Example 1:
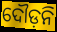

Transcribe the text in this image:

ଦୌଡ଼ନି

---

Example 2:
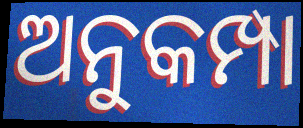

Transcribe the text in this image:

ଅନୁକମ୍ପା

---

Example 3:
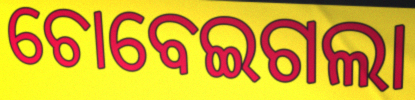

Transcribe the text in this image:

ଚୋବେଇଗଲା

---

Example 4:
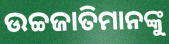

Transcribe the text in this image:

ଉଚ୍ଚଜାତିମାନଙ୍କୁ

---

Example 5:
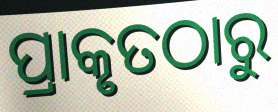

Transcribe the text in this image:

ପ୍ରାକୃତଠାରୁ